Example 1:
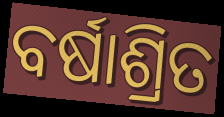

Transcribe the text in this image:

ବର୍ଷାଶ୍ରିତ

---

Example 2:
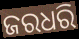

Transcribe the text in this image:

ଜରଧରି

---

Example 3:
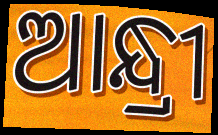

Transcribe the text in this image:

ଆନ୍ଧ୍ରୀ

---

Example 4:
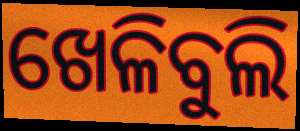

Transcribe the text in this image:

ଖେଳିବୁଲି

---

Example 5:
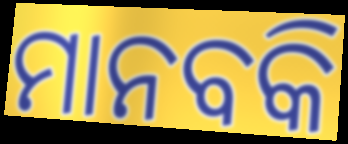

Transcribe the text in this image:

ମାନବକି